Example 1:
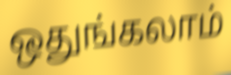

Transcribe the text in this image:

ஒதுங்கலாம்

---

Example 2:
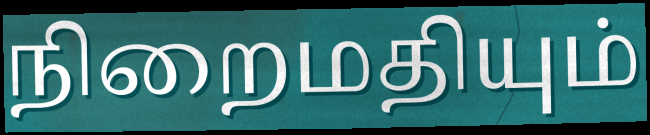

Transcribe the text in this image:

நிறைமதியும்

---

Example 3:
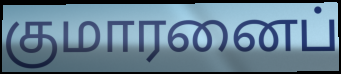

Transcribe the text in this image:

குமாரனைப்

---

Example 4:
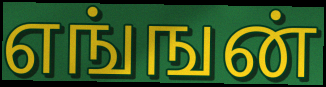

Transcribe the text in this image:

எங்ஙன்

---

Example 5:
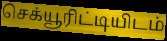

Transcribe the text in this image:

செக்யூரிட்டியிடம்